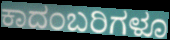
ಕಾದಂಬರಿಗಳೂ